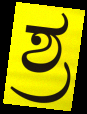
ಶ್ರ